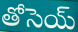
తోసెయ్